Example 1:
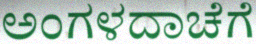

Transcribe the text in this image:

ಅಂಗಳದಾಚೆಗೆ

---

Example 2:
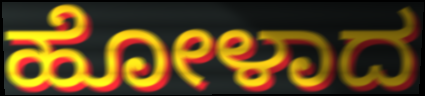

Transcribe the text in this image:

ಹೋಳಾದ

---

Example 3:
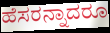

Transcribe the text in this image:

ಹೆಸರನ್ನಾದರೂ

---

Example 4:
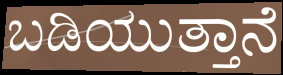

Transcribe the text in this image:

ಬಡಿಯುತ್ತಾನೆ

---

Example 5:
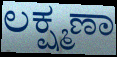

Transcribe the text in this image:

ಲಕ್ಷ್ಮಣಾ